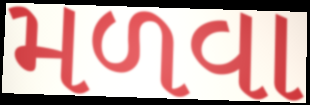
મળવા